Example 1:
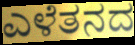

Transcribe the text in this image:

ಎಳೆತನದ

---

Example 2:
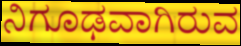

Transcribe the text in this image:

ನಿಗೂಢವಾಗಿರುವ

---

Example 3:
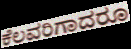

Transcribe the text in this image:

ಕೆಲವರಿಗಾದರೂ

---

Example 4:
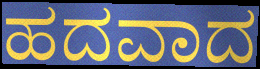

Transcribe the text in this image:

ಹದವಾದ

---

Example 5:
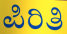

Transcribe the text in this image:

ಪಿರಿತಿ